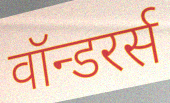
वॉन्डरर्स